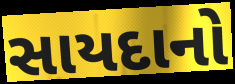
સાયદાનો